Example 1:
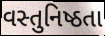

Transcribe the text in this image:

વસ્તુનિષ્ઠતા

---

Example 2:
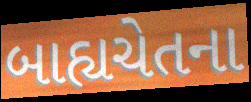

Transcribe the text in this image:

બાહ્યચેતના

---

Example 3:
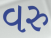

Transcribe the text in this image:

વરુ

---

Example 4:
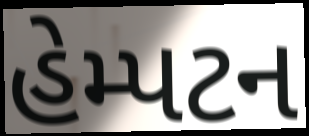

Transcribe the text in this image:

હેમ્પટન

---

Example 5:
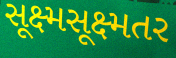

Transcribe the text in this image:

સૂક્ષ્મસૂક્ષ્મતર